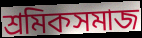
শ্রমিকসমাজ